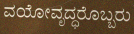
ವಯೋವೃದ್ಧರೊಬ್ಬರು